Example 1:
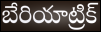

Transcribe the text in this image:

బేరియాట్రిక్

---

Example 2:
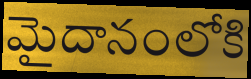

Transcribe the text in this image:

మైదానంలోకి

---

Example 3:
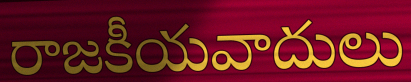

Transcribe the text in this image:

రాజకీయవాదులు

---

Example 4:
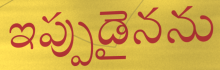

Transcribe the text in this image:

ఇప్పుడైనను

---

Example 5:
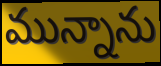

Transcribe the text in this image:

మున్నాను